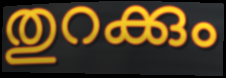
തുറക്കും